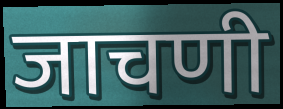
जाचणी